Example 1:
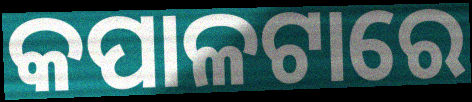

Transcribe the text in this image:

କପାଳଟାରେ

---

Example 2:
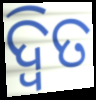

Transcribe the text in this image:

ଦ୍ବିତ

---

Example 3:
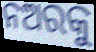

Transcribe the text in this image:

ନଅରକୁ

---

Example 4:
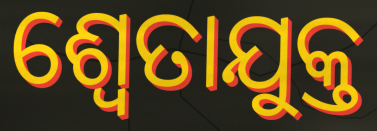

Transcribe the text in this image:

ଶ୍ଵେତାଯୁକ୍ତ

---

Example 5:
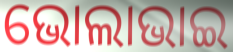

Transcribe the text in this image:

ଭୋଲାଭାଇ